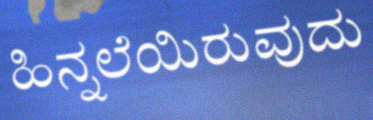
ಹಿನ್ನಲೆಯಿರುವುದು